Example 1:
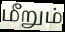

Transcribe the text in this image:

மீறும்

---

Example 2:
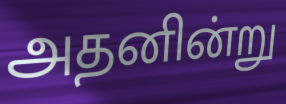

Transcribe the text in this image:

அதனின்று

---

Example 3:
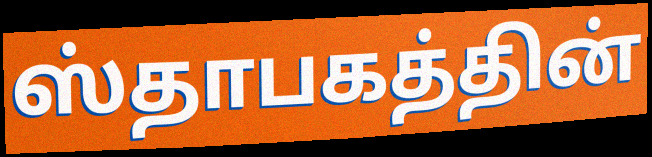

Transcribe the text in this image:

ஸ்தாபகத்தின்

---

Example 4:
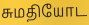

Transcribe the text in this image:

சுமதியோட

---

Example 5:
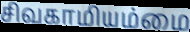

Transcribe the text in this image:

சிவகாமியம்மை